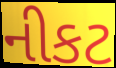
નીકટ